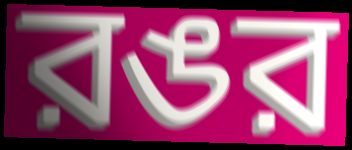
রঙর